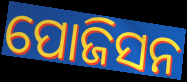
ପୋଜିସନ